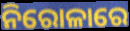
ନିରୋଳାରେ